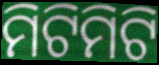
ମିଟିମିଟି